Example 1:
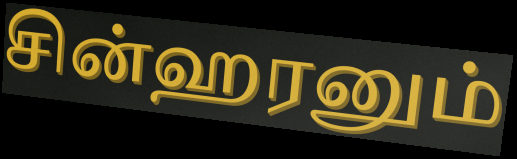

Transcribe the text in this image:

சின்ஹரனும்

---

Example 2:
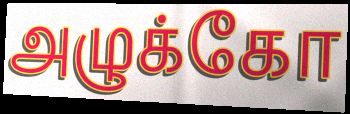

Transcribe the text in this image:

அழுக்கோ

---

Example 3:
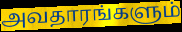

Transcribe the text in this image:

அவதாரங்களும்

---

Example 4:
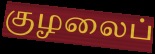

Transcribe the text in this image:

குழலைப்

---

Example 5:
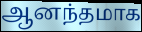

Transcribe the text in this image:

ஆனந்தமாக